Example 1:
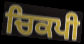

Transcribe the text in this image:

ਚਿਕਪੀ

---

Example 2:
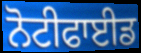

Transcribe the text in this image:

ਨੋਟੀਫਾਈਡ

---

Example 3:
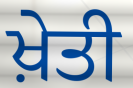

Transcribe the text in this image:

ਖ਼ੇਤੀ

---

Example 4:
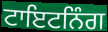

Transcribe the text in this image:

ਟਾਇਟਨਿੰਗ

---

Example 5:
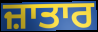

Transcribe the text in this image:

ਜ਼ਾਤਾਰ